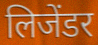
लिजेंडर